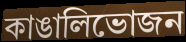
কাঙালিভোজন